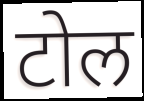
टोल